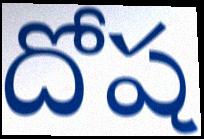
దోష